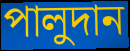
পালুদান